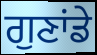
ਗੁਣਾਂਡੇ